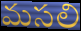
మసలి